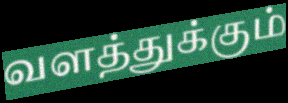
வளத்துக்கும்